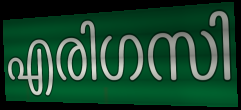
എരിഗസി